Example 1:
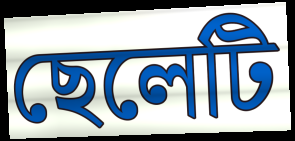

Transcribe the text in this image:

ছেলেটি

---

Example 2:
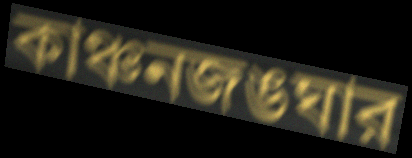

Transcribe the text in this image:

কাঞ্চনজঙঘার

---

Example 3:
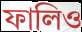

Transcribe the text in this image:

ফালিও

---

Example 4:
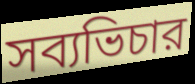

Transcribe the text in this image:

সব্যভিচার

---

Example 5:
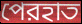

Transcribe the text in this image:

পেরহাত